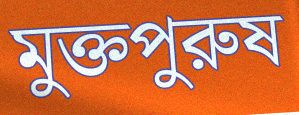
মুক্তপুরুষ